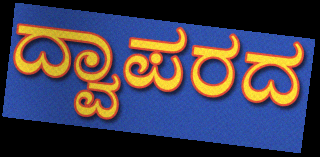
ದ್ವಾಪರದ